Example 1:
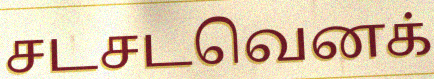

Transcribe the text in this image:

சடசடவெனக்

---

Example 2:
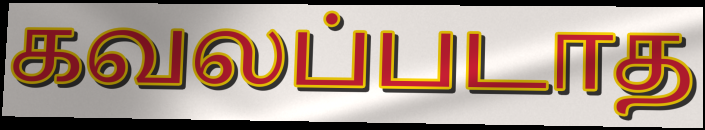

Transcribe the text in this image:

கவலப்படாத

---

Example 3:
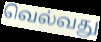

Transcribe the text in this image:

வெல்வது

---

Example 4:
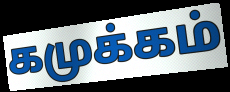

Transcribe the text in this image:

கமுக்கம்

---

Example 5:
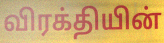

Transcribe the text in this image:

விரக்தியின்